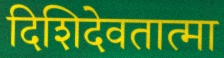
दिशिदेवतात्मा